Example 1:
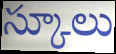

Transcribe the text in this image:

స్కూలు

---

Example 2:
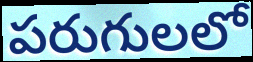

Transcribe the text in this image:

పరుగులలో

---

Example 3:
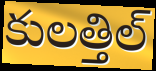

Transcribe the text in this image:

కులత్తిల్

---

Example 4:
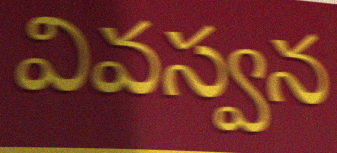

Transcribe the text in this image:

వివస్వన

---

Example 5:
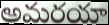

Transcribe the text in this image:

అమరయా